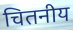
चितनीय